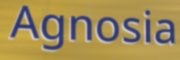
Agnosia